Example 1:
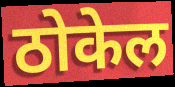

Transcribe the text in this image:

ठोकेल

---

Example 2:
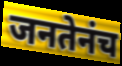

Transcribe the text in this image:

जनतेनंच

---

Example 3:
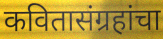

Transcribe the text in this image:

कवितासंग्रहांचा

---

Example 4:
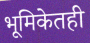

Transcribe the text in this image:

भूमिकेतही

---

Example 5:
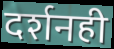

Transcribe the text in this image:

दर्शनही